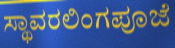
ಸ್ಥಾವರಲಿಂಗಪೂಜೆ